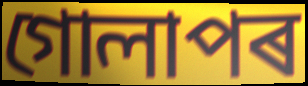
গোলাপৰ